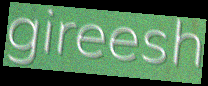
gireesh